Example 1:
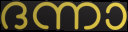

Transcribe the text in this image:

ദന്നാ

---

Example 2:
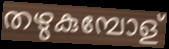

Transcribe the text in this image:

തഴുകുമ്പോള്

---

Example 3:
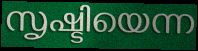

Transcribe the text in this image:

സൃഷ്ടിയെന്ന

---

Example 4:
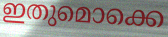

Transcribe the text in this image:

ഇതുമൊക്കെ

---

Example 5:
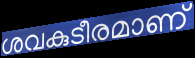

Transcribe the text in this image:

ശവകുടീരമാണ്